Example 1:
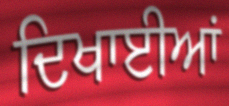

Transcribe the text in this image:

ਦਿਖਾਈਆਂ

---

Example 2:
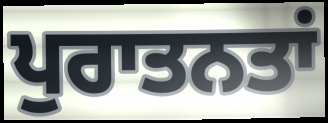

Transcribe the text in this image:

ਪੁਰਾਤਨਤਾਂ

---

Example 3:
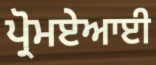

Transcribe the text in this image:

ਪ੍ਰੋਮਏਆਈ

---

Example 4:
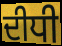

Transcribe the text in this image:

ਦੀਧੀ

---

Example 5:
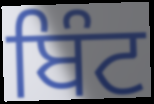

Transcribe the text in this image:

ਬਿੰਟ